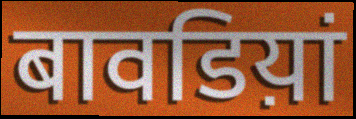
बावडिय़ां